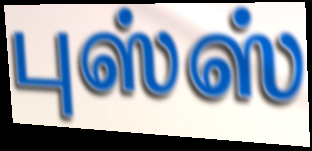
புஸ்ஸ்